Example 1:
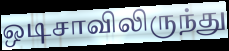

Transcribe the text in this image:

ஒடிசாவிலிருந்து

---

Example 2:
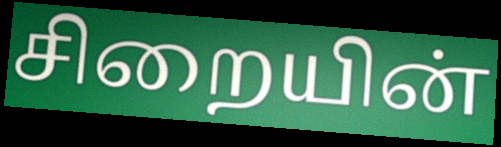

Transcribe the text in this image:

சிறையின்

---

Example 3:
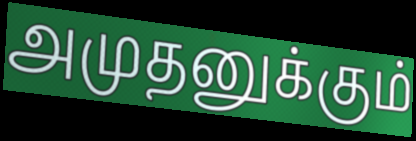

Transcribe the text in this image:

அமுதனுக்கும்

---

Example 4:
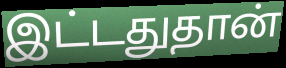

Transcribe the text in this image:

இட்டதுதான்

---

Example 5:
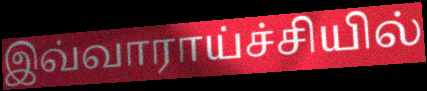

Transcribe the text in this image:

இவ்வாராய்ச்சியில்